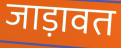
जाड़ावत